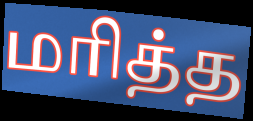
மரித்த